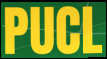
PUCL